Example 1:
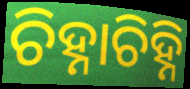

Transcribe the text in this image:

ଚିହ୍ନାଚିହ୍ନି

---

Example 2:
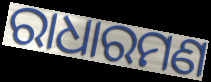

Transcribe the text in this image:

ରାଧାରମଣ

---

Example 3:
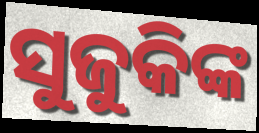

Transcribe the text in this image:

ସୁଜୁକିଙ୍କ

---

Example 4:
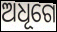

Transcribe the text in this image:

ଅଧୂଗେ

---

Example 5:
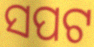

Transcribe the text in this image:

ସପଟ